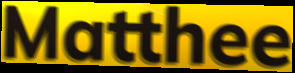
Matthee